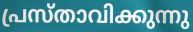
പ്രസ്താവിക്കുന്നു